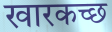
खारकच्छ